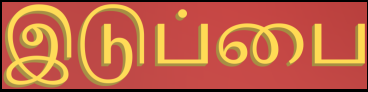
இடுப்பை